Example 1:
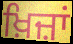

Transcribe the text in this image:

ਖ਼ਿਜ਼ਾਂ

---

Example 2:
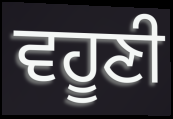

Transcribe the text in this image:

ਵਹੂਣੀ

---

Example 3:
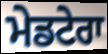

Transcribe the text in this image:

ਮੇਡਟੇਰਾ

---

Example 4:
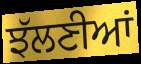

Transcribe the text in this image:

ਝੱਲਣੀਆਂ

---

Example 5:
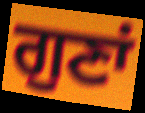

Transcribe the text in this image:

ਗੁਣਾਂ